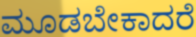
ಮೂಡಬೇಕಾದರೆ